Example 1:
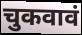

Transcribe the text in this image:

चुकवावं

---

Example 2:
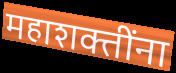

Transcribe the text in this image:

महाशक्तींना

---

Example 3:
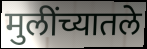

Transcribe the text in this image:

मुलींच्यातले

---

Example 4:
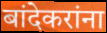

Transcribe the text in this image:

बांदेकरांना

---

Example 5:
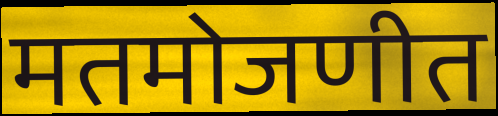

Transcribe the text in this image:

मतमोजणीत